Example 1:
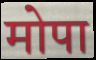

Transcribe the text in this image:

मोपा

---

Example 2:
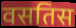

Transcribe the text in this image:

वसतिस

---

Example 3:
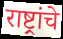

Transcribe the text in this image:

राष्ट्रांचे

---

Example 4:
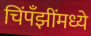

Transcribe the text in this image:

चिंपँझींमध्ये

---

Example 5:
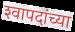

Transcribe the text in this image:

श्‍वापदांच्या